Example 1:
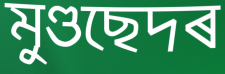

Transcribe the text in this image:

মুণ্ডছেদৰ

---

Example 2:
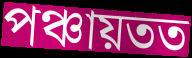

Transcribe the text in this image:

পঞ্চায়তত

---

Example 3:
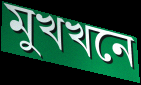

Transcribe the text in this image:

মুখখনে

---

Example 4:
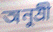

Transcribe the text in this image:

অনুশ্ৰী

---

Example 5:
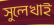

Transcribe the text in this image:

সুলেখাই